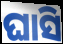
ଘାସି